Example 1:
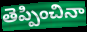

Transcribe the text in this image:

తెప్పించినా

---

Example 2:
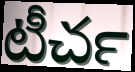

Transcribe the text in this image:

టీచర్‍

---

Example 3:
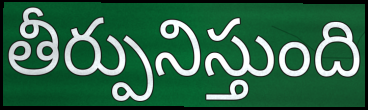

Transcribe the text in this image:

తీర్పునిస్తుంది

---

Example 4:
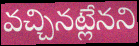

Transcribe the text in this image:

వచ్చినట్లేనని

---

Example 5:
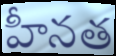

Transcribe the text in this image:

హీనత